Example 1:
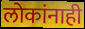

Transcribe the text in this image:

लोकांनाही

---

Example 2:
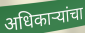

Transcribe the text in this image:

अधिकाऱ्यांचा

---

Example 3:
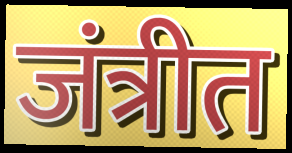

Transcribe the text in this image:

जंत्रीत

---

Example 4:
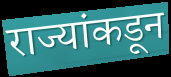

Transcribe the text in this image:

राज्यांकडून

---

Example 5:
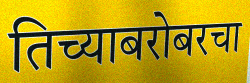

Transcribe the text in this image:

तिच्याबरोबरचा